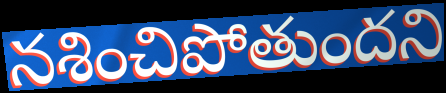
నశించిపోతుందని